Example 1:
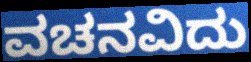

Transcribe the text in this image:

ವಚನವಿದು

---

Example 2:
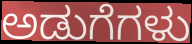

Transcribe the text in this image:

ಅಡುಗೆಗಳು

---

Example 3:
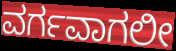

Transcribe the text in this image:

ವರ್ಗವಾಗಲೀ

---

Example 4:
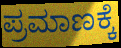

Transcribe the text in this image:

ಪ್ರಮಾಣಕ್ಕೆ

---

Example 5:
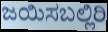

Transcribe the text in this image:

ಜಯಿಸಬಲ್ಲಿರಿ